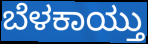
ಬೆಳಕಾಯ್ತು